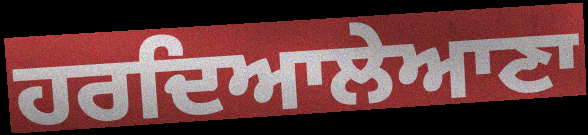
ਹਰਦਿਆਲੇਆਣਾ